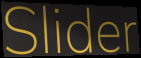
Slider